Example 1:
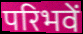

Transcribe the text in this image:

परिभवें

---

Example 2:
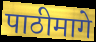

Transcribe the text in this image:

पाठीमागे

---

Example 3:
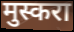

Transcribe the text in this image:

मुस्करा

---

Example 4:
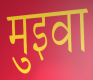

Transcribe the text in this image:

मुइवा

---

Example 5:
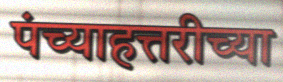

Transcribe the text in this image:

पंच्याहत्तरीच्या